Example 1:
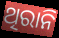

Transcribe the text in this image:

ଥିରାନି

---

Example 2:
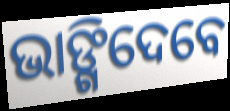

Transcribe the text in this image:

ଭାଙ୍ଗିଦେବେ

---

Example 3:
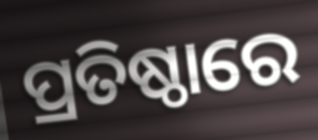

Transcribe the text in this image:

ପ୍ରତିଷ୍ଠାରେ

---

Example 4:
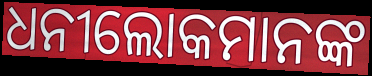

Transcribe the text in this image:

ଧନୀଲୋକମାନଙ୍କ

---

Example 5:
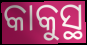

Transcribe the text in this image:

କାକୁସ୍ଥ